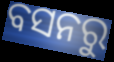
ବସନରୁ